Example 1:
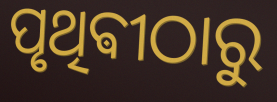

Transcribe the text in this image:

ପୃଥିଵୀଠାରୁ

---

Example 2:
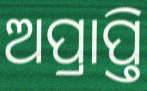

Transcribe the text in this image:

ଅପ୍ରାପ୍ତି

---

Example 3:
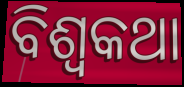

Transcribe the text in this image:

ବିଶ୍ୱକଥା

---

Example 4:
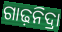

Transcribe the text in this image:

ଗାଢ଼ନିଦ୍ରା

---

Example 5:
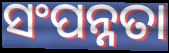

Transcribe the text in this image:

ସଂପନ୍ନତା